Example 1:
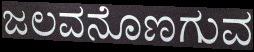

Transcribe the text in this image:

ಜಲವನೊಣಗುವ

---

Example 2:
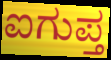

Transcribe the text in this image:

ಐಗುಪ್ತ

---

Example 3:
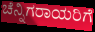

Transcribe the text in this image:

ಚೆನ್ನಿಗರಾಯರಿಗೆ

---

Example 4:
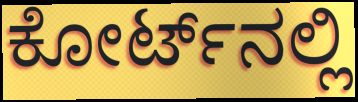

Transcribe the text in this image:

ಕೋರ್ಟ್‌ನಲ್ಲಿ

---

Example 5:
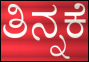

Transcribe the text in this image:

ತಿನ್ನಕೆ